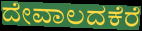
ದೇವಾಲದಕೆರೆ